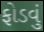
ફોડવું